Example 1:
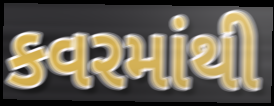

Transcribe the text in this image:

કવરમાંથી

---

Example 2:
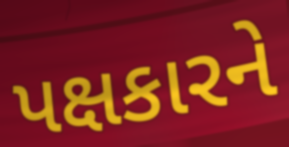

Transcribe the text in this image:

પક્ષકારને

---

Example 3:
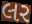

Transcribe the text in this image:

લર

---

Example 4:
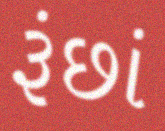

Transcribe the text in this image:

રૂંછાં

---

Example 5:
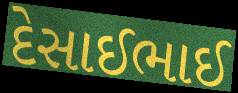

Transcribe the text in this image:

દેસાઈભાઈ